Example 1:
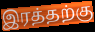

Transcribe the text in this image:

இரத்தற்கு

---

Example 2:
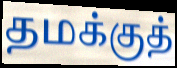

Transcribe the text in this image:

தமக்குத்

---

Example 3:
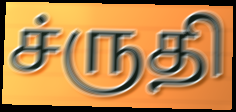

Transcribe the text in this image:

ச்ருதி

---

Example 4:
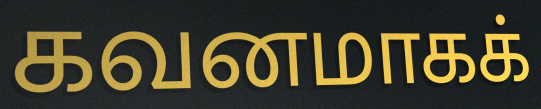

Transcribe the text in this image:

கவனமாகக்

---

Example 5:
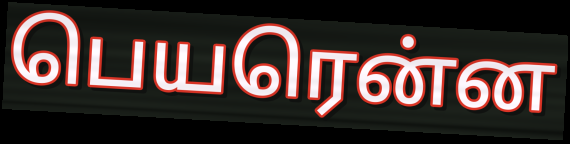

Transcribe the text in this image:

பெயரென்ன